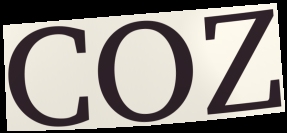
COZ